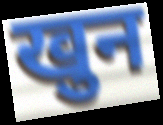
खुन